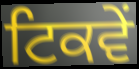
ਟਿਕਵੇਂ